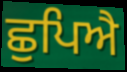
ਛੁਪਿਐ